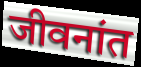
जीवनांत